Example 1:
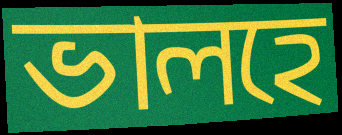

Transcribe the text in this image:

ভালহে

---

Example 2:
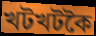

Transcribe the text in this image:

খটখটকৈ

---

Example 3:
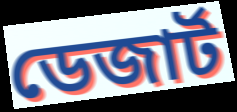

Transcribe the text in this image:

ডেজাৰ্ট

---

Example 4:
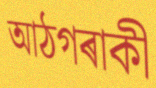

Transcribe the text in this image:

আঠগৰাকী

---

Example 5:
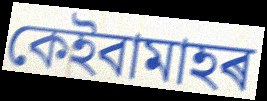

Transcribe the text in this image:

কেইবামাহৰ